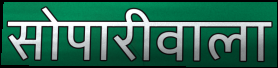
सोपारीवाला